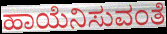
ಹಾಯೆನಿಸುವಂತೆ